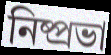
নিষ্প্রভা